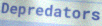
Depredators